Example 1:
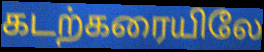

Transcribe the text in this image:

கடற்கரையிலே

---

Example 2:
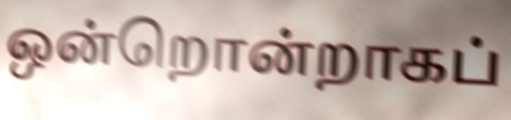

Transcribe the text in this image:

ஒன்றொன்றாகப்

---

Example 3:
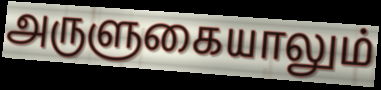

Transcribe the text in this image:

அருளுகையாலும்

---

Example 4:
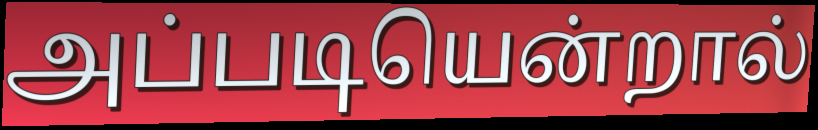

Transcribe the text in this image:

அப்படியென்றால்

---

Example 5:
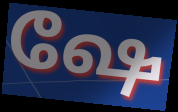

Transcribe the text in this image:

ஷே